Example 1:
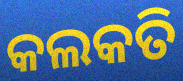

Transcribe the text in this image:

କଲକତି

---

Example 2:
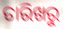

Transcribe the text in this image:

ତାରିଖରୁ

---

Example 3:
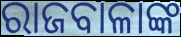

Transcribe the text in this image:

ରାଜବାଳାଙ୍କ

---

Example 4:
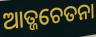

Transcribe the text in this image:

ଆତ୍ଜଚେତନା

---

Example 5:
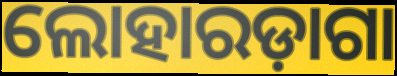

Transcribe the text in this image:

ଲୋହାରଡ଼ାଗା